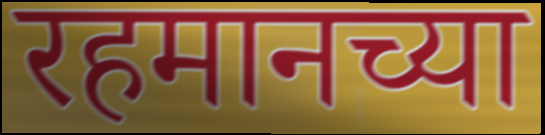
रहमानच्या